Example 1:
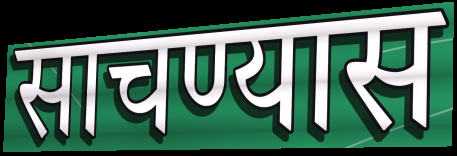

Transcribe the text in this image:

साचण्यास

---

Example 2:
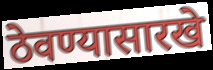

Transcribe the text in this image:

ठेवण्यासारखे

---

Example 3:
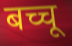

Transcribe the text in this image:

बच्चू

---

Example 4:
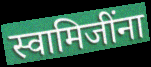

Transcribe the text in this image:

स्वामिजींना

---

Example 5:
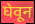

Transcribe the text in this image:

घेवून